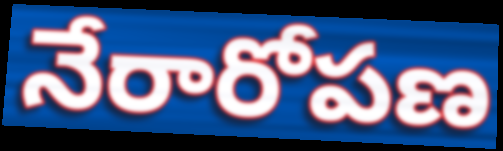
నేరారోపణ